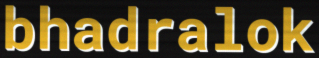
bhadralok